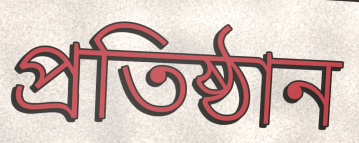
প্ৰতিষ্ঠান